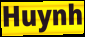
Huynh